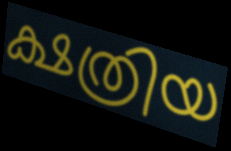
ക്ഷത്രിയ